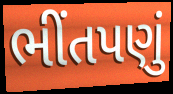
ભીંતપણું